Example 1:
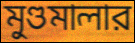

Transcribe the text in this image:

মুণ্ডমালার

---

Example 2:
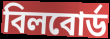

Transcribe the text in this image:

বিলবোর্ড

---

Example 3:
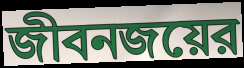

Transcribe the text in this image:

জীবনজয়ের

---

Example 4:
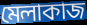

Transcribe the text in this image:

মেলাকাজ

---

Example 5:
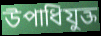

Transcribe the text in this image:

উপাধিযুক্ত